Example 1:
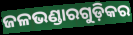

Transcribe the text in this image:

ଜଳଭଣ୍ଡାରଗୁଡ଼ିକର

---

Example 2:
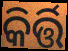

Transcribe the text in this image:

କିର୍ତ୍ତି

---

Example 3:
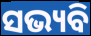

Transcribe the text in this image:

ସଭ୍ୟବି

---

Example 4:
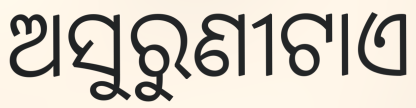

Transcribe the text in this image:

ଅସୁରୁଣୀଟାଏ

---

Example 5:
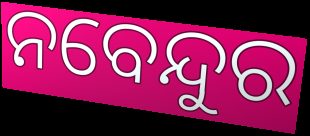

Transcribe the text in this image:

ନବେନ୍ଦୁର